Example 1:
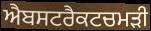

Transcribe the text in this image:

ਐਬਸਟਰੈਕਟਚਮੜੀ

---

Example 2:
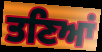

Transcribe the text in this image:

ਤਣਿਆਂ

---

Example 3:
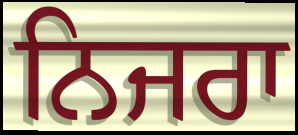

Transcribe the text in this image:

ਨਿਜਰਾ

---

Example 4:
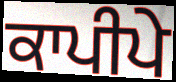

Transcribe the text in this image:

ਕਾਪੀਪੇ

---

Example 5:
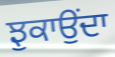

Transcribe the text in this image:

ਝੁਕਾਉਂਦਾ